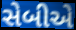
સેબીએ